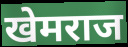
खेमराज